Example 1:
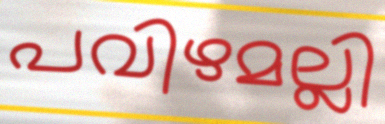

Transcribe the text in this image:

പവിഴമല്ലി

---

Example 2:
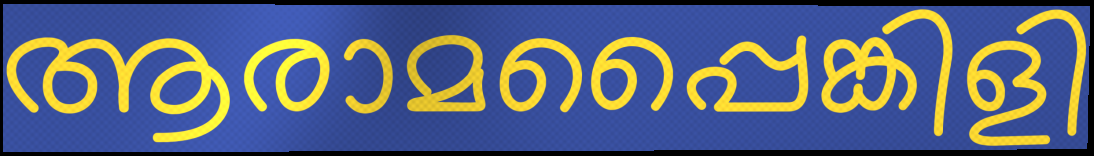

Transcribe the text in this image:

ആരാമപ്പൈങ്കിളി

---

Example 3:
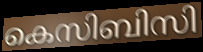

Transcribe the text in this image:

കെസിബിസി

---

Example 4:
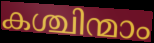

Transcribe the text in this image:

കശ്ചിന്മാം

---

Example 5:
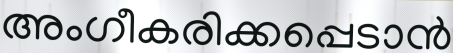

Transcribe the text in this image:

അംഗീകരിക്കപ്പെടാൻ